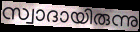
സ്വാദായിരുന്നു